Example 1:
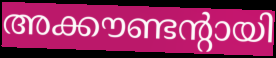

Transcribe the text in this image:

അക്കൗണ്ടന്റായി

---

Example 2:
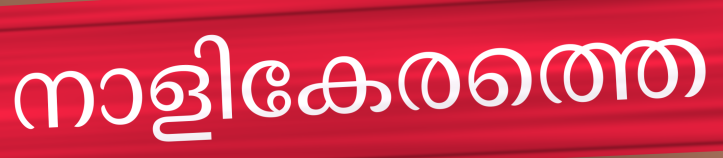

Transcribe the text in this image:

നാളികേരത്തെ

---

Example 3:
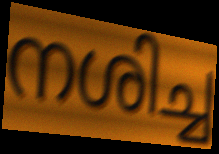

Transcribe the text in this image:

നശിച്ച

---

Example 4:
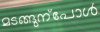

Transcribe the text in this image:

മടങ്ങുന്പോൾ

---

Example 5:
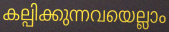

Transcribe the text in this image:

കല്പിക്കുന്നവയെല്ലാം